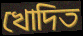
খোদিত